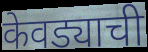
केवड्याची